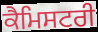
ਕੈਮਿਸਟਰੀ